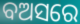
ବଅସରେ